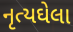
નૃત્યઘેલા